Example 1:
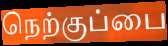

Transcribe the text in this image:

நெற்குப்பை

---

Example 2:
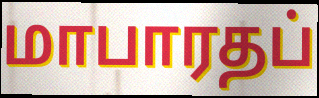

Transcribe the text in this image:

மாபாரதப்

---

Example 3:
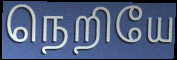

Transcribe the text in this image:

நெறியே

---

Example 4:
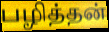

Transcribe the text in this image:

பழித்தன்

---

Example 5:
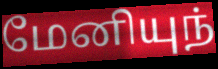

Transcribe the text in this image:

மேனியுந்